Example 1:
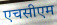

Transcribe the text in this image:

एचसीएम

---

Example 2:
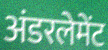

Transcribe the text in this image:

अंडरलेमेंट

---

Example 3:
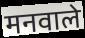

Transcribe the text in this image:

मनवाले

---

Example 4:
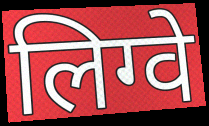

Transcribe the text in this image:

लिग्वे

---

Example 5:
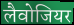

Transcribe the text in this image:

लैवोजियर